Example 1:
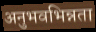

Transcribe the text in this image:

अनुभवभिन्नता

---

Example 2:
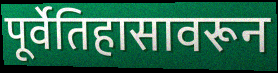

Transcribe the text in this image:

पूर्वेतिहासावरून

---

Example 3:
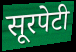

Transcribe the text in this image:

सूरपेटी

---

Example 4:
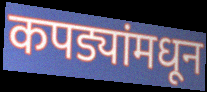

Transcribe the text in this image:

कपड्यांमधून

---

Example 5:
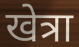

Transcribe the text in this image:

खेत्रा